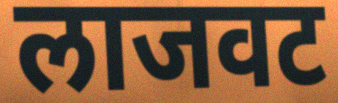
लाजवट